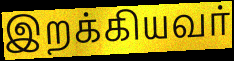
இறக்கியவர்